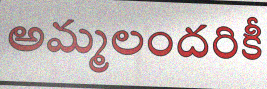
అమ్మలందరికీ